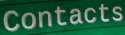
Contacts